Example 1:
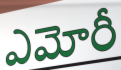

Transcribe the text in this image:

ఎమోరీ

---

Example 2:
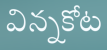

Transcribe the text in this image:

విన్నకోట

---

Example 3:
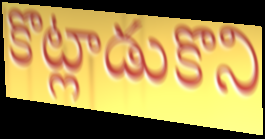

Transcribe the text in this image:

కొట్లాడుకొని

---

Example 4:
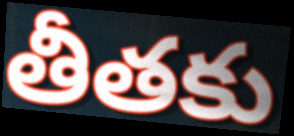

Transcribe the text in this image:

తీతకు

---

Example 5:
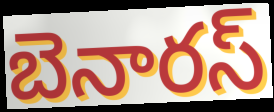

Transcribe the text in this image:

బెనారస్